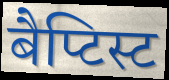
बैप्टिस्ट